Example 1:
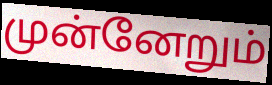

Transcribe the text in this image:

முன்னேறும்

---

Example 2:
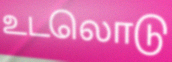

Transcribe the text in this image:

உடலொடு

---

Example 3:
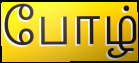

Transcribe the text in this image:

போழ்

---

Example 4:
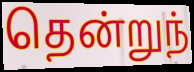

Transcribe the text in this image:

தென்றுந்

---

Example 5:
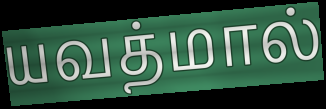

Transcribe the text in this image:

யவத்மால்